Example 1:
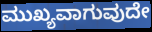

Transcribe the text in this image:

ಮುಖ್ಯವಾಗುವುದೇ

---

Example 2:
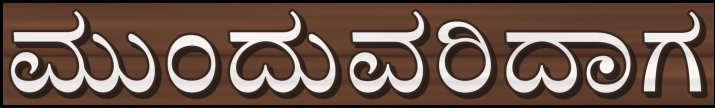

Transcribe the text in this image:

ಮುಂದುವರಿದಾಗ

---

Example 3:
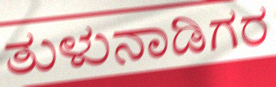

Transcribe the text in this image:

ತುಳುನಾಡಿಗರ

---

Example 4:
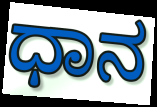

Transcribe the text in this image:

ಧಾನ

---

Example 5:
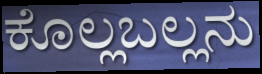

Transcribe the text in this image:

ಕೊಲ್ಲಬಲ್ಲನು